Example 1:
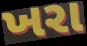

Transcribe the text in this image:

ખરા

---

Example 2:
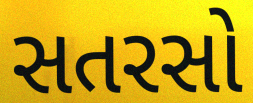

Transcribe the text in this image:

સતરસો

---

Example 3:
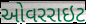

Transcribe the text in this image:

ઓવરરાઇટ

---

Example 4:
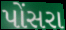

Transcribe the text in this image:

પોંસરા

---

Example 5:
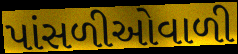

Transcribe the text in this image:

પાંસળીઓવાળી